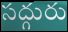
సద్గురు